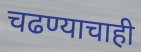
चढण्याचाही